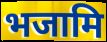
भजामि